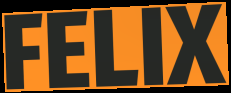
FELIX